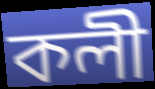
কলী